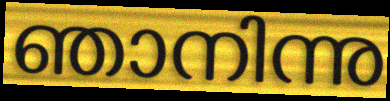
ഞാനിന്നു